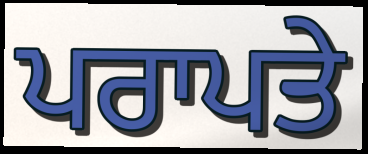
ਪਰਾਪਤੇ